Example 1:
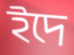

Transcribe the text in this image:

ইদে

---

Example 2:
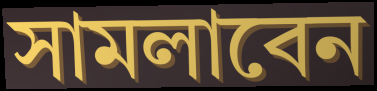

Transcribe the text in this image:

সামলাবেন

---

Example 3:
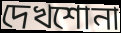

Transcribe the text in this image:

দেখশোনা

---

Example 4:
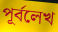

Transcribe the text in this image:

পূর্বলেখ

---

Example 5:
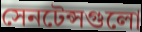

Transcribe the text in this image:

সেনটেন্সগুলো